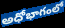
అధోభాగంలో